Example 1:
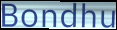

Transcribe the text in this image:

Bondhu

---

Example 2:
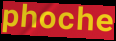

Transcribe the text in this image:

phoche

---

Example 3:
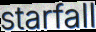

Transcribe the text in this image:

starfall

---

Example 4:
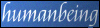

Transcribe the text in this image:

humanbeing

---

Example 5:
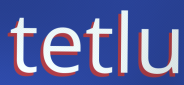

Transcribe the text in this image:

tetlu